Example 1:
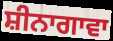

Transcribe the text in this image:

ਸ਼ੀਨਾਗਾਵਾ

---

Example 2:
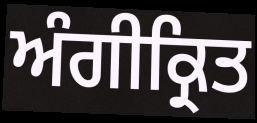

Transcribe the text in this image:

ਅੰਗੀਕ੍ਰਿਤ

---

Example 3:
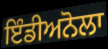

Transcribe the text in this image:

ਇੰਡੀਅਨੋਲਾ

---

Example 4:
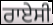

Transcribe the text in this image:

ਰਾਏਸੀ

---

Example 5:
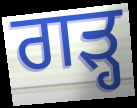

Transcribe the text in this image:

ਗੜ੍ਹ